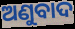
ଅଣୁବାଦ